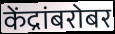
केंद्रांबरोबर